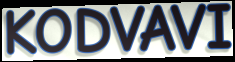
KODVAVI